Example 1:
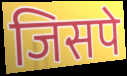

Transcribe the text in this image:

जिसपे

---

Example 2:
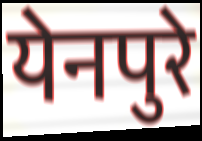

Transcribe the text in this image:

येनपुरे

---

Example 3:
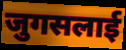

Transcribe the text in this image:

जुगसलाई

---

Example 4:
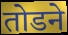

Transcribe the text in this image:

तोडने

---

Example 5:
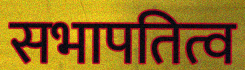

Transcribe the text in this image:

सभापतित्व